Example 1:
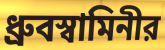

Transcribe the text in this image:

ধ্রুবস্বামিনীর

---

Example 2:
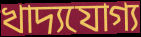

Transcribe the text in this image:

খাদ্যযোগ্য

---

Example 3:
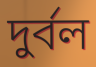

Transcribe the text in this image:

দুর্বল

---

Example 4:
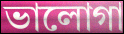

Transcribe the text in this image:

ভালোগা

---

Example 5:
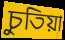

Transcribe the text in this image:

চুতিয়া